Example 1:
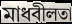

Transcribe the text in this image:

মাধবীলতা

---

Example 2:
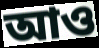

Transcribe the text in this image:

আও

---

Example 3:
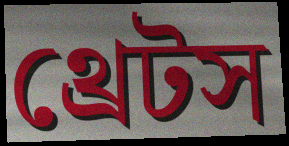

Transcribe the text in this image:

থ্রেটস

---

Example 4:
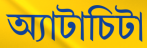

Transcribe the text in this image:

অ্যাটাচিটা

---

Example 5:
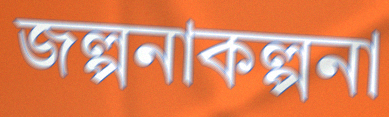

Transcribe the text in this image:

জল্পনাকল্পনা